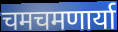
चमचमणार्या